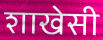
शाखेसी